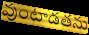
వుంటాడతను